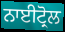
ਨਾਈਟ੍ਰੋਲ